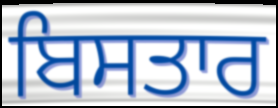
ਬਿਸਤਾਰ